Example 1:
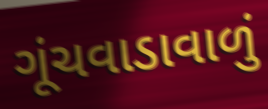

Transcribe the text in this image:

ગૂંચવાડાવાળું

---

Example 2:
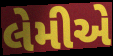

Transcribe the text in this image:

લેમીએ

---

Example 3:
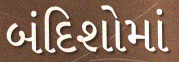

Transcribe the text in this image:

બંદિશોમાં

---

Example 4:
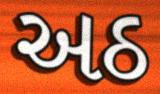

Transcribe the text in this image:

અઠ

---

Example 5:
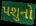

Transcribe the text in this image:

પશુનો